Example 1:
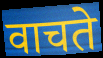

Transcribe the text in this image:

वाचते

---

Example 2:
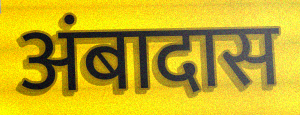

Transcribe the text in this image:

अंबादास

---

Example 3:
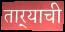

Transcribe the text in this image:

तार्याची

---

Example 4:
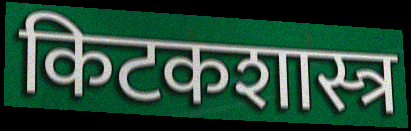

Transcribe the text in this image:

किटकशास्‍त्र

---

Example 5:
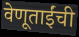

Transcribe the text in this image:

वेणूताईंची